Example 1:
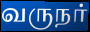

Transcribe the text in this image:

வருநர்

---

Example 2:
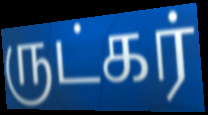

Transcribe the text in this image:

ருட்கர்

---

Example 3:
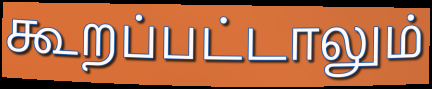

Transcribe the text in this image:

கூறப்பட்டாலும்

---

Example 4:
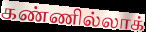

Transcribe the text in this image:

கண்ணில்லாக்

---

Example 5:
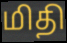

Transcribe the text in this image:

மிதி